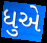
ધુએ